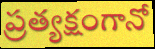
ప్రత్యక్షంగానో